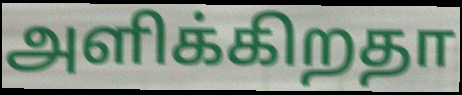
அளிக்கிறதா